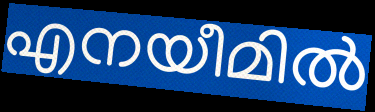
എനയീമിൽ